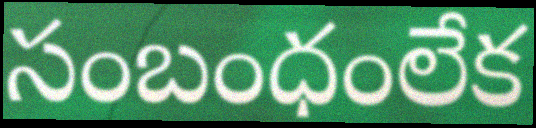
సంబంధంలేక